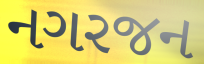
નગરજન